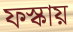
ফস্কায়